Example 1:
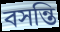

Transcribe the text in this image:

বসন্তি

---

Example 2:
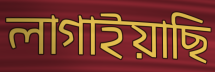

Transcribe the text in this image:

লাগাইয়াছি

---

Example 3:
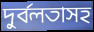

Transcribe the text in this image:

দুর্বলতাসহ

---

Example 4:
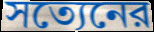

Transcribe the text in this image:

সত্যেনের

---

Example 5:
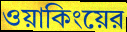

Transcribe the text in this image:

ওয়াকিংয়ের